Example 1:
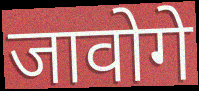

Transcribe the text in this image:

जावोगे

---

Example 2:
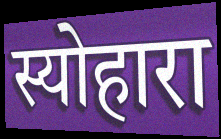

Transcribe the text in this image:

स्योहारा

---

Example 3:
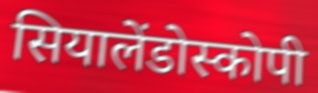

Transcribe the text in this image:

सियालेंडोस्कोपी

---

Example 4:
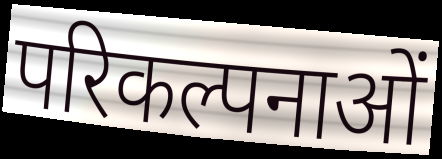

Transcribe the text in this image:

परिकल्पनाओं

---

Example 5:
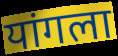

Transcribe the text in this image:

यांगला